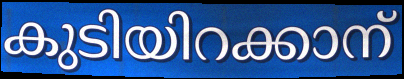
കുടിയിറക്കാന്